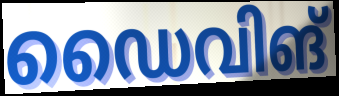
ഡൈവിങ്